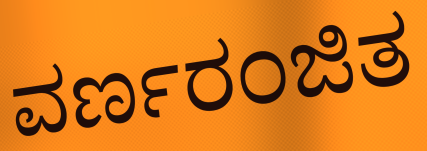
ವರ್ಣರಂಜಿತ